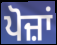
ਪੋਜ਼ਾਂ